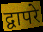
द्वापरे